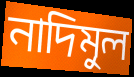
নাদিমুল